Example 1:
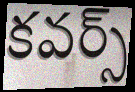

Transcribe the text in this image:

కవర్స్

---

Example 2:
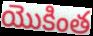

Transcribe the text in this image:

యొకింత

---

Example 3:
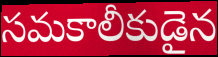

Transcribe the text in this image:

సమకాలీకుడైన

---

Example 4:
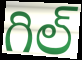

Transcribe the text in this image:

గిల్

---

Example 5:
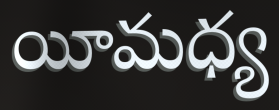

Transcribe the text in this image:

యీమధ్య